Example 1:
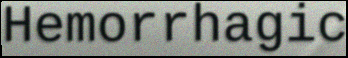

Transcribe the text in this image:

Hemorrhagic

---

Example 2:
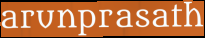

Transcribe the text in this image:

arunprasath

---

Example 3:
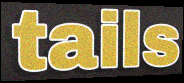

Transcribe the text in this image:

tails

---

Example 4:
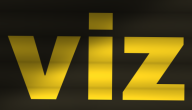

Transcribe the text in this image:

viz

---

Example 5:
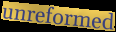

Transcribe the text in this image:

unreformed